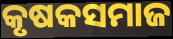
କୃଷକସମାଜ